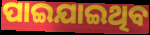
ପାଇଯାଇଥିବ